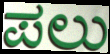
ಪಲು